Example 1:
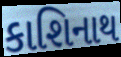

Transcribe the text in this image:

કાશિનાથ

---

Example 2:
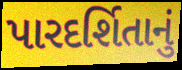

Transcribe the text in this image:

પારદર્શિતાનું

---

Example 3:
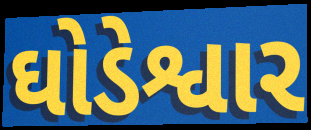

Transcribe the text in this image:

ઘોડેશ્વાર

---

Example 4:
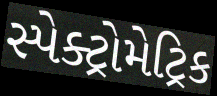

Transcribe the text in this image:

સ્પેક્ટ્રોમેટ્રિક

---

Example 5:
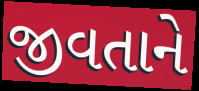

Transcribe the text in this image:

જીવતાને